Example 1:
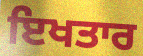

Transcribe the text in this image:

ਇਖਤਾਰ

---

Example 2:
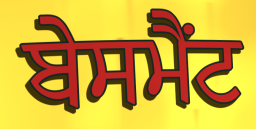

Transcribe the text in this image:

ਬੇਸਮੈਂਟ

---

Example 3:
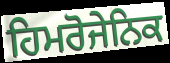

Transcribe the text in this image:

ਹਿਮਰੋਜੇਨਿਕ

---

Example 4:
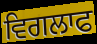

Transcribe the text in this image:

ਵਿਗਲਾਫ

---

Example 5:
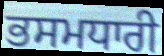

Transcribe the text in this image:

ਭਸਮਧਾਰੀ